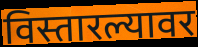
विस्तारल्यावर